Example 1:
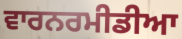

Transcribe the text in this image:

ਵਾਰਨਰਮੀਡੀਆ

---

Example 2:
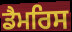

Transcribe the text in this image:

ਡੈਮਰਿਸ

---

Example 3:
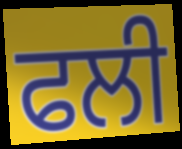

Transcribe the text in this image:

ਫਲੀ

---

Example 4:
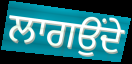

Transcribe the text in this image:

ਲਾਗਉਂਦੇ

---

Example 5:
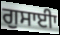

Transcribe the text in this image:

ਗੁਸਾਈਾ